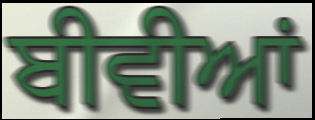
ਬੀਵੀਆਂ